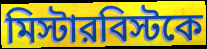
মিস্টারবিস্টকে